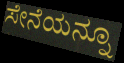
ಸೇನೆಯನ್ನೂ